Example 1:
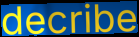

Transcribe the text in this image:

decribe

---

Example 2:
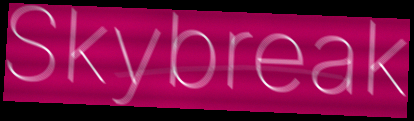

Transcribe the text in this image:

Skybreak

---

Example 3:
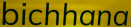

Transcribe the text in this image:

bichhana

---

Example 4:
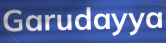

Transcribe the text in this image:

Garudayya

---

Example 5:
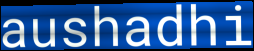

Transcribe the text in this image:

aushadhi